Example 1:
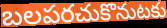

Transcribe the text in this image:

బలపరచుకొనుటకు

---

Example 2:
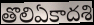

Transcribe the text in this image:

తొలిఏకాదశి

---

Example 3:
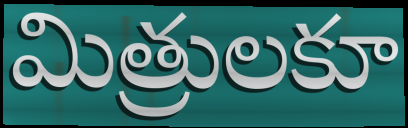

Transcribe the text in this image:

మిత్రులకూ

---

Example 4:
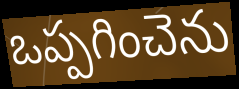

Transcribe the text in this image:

ఒప్పగించెను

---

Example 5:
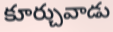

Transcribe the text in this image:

కూర్చువాడు